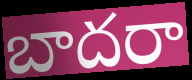
బాదరా